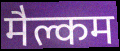
मैल्कम